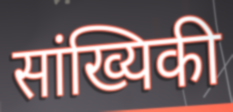
सांख्यिकी